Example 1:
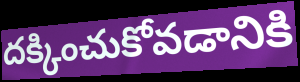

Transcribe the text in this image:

దక్కించుకోవడానికి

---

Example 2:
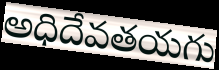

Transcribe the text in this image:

అధిదేవతయగు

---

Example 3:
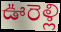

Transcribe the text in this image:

ఊరెళ్లి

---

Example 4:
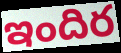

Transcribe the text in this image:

ఇందిర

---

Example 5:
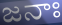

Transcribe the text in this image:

జనాః